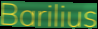
Barilius